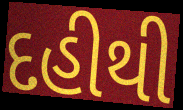
દહીથી